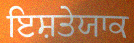
ਇਸ਼ਤੇਯਾਕ